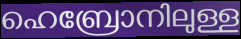
ഹെബ്രോനിലുള്ള